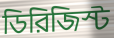
ডিরিজিস্ট